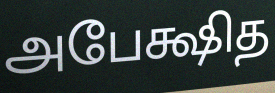
அபேக்ஷித